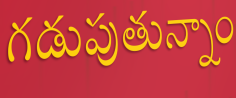
గడుపుతున్నాం